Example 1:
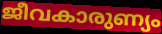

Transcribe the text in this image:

ജീവകാരുണ്യം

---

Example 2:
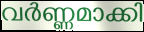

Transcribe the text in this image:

വർണ്ണമാക്കി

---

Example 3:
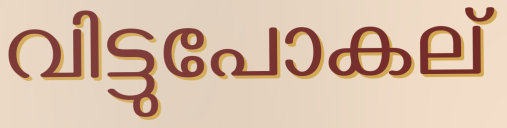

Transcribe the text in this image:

വിട്ടുപോകല്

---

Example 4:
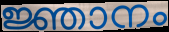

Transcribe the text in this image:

ജ്ഞാനം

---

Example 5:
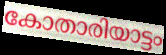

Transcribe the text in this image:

കോതാരിയാട്ടം